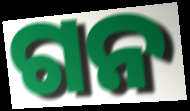
ଗନ